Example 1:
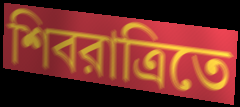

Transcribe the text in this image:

শিবরাত্রিতে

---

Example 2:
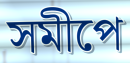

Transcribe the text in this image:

সমীপে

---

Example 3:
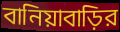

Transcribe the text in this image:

বানিয়াবাড়ির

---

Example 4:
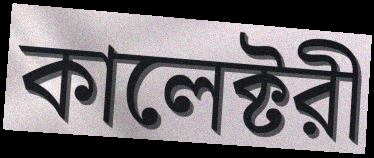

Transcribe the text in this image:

কালেক্টরী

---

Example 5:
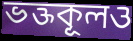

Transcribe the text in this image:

ভক্তকূলও